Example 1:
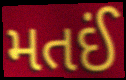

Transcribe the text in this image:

મતઈં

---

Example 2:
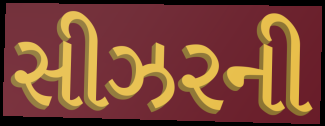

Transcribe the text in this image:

સીઝરની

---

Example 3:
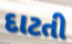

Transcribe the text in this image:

દાટતી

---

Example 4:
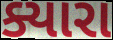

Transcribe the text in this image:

ક્યારા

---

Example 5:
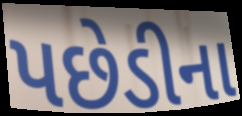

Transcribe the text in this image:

પછેડીના